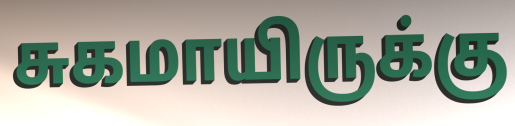
சுகமாயிருக்கு